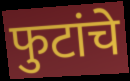
फुटांचे